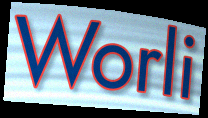
Worli